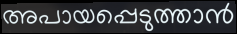
അപായപ്പെടുത്താൻ